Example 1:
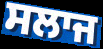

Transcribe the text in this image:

ਸਲਾਜ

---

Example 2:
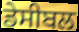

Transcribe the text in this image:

ਡੇਸੀਬਲ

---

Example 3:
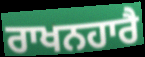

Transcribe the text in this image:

ਰਾਖਨਹਾਰੈ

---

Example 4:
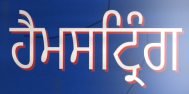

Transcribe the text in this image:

ਹੈਮਸਟ੍ਰਿੰਗ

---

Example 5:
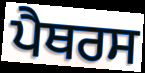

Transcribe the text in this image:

ਪੈਥਰਸ